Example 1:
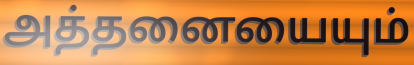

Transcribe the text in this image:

அத்தனையையும்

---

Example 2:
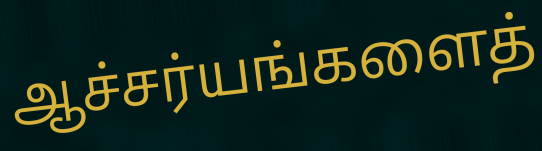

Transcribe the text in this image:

ஆச்சர்யங்களைத்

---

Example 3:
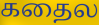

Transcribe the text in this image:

கதைல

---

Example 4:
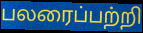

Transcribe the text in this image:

பலரைப்பற்றி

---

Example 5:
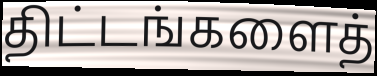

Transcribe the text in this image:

திட்டங்களைத்